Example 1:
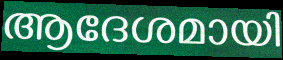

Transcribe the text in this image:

ആദേശമായി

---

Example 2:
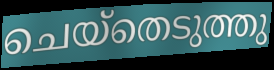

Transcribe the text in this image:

ചെയ്തെടുത്തു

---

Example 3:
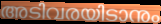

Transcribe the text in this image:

അടിവരയിടാനും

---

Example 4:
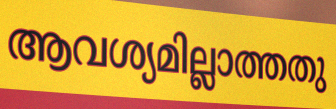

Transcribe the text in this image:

ആവശ്യമില്ലാത്തതു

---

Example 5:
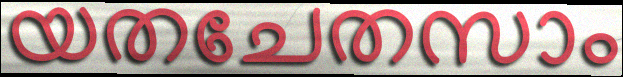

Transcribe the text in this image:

യതചേതസാം